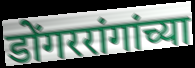
डोंगररांगांच्या